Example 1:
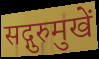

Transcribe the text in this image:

सद्गुरुमुखें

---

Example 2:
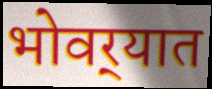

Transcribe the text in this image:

भोवर्यात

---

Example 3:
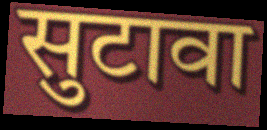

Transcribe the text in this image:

सुटावा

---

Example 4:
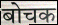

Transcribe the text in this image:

बोचक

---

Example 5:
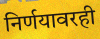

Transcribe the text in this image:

निर्णयावरही